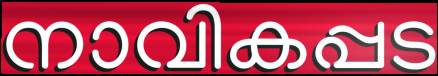
നാവികപ്പട